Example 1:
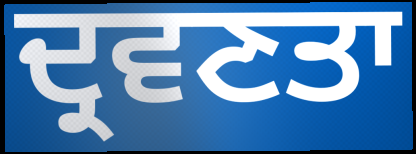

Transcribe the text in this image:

ਦ੍ਰਵਣਤਾ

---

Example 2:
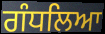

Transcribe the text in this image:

ਗੰਧਲਿਆ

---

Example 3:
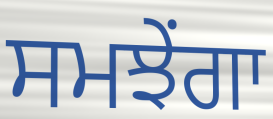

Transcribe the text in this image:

ਸਮਝੇਂਗਾ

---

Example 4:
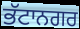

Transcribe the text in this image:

ਭੱਟਾਨਗਰ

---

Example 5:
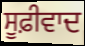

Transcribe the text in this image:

ਸੂਫ਼ੀਵਾਦ